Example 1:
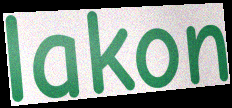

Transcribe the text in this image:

lakon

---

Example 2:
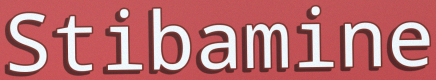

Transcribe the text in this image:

Stibamine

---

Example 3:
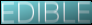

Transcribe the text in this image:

EDIBLE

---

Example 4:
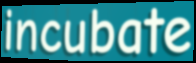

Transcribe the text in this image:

incubate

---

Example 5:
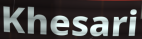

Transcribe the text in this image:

Khesari